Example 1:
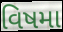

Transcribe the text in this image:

વિષમા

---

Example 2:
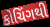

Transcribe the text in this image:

કોચિંગથી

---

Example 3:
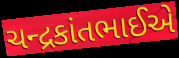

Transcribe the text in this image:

ચન્દ્રકાંતભાઈએ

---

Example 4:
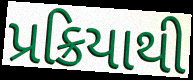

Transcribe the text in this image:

પ્રક્રિયાથી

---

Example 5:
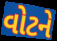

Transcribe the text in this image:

વોટને